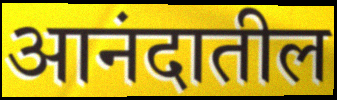
आनंदातील